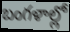
బంగళాల్లో